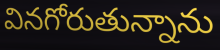
వినగోరుతున్నాను